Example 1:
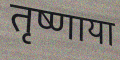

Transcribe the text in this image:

तृष्णाया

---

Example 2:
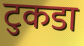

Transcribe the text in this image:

टुकडा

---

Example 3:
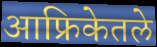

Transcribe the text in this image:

आफ्रिकेतले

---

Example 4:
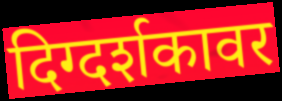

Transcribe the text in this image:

दिग्दर्शकावर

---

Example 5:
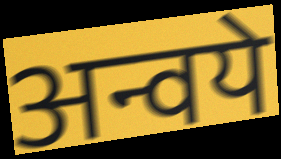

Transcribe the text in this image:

अन्‍वये